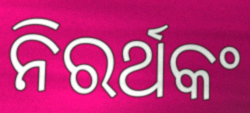
ନିରର୍ଥକଂ